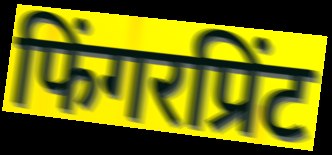
फिंगरप्रिंट